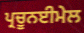
ਪ੍ਰਚੂਨਈਮੇਲ